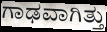
ಗಾಢವಾಗಿತ್ತು